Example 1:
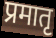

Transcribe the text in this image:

प्रमातृ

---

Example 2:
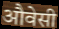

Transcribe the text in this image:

औवेसी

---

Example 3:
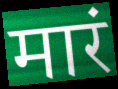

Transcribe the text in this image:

मारं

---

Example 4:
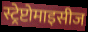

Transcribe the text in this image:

स्ट्रेप्टोमाइसीज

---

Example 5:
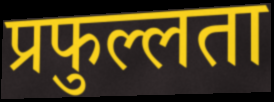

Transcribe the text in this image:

प्रफुल्लता